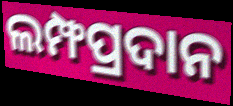
ଲମ୍ଫପ୍ରଦାନ